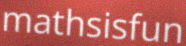
mathsisfun